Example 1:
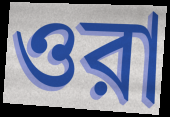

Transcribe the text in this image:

ওরা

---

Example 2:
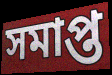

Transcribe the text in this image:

সমাপ্ত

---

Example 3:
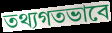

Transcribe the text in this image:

তথ্যগতভাবে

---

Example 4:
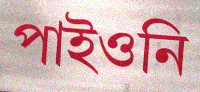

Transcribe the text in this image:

পাইওনি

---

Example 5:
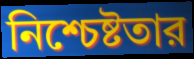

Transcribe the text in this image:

নিশ্চেষ্টতার